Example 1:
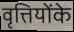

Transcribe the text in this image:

वृत्तियोंके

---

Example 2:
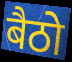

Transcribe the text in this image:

बैठो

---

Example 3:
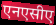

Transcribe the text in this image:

एनएसीए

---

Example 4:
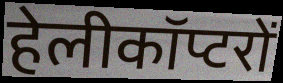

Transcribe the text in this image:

हेलीकॉप्टरों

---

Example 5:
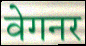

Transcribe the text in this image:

वेगनर